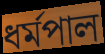
ধৰ্মপাল